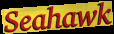
Seahawk